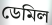
ডেমিল